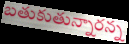
బతుకుతున్నారన్న